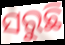
ସରୁଛି